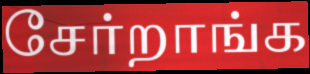
சேர்றாங்க